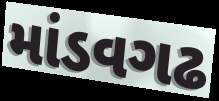
માંડવગઢ